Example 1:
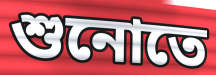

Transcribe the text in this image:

শুনোতে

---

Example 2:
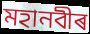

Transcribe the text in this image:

মহানবীৰ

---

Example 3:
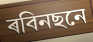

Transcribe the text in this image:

ৰবিনছনে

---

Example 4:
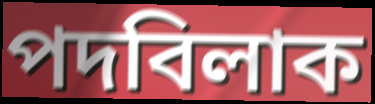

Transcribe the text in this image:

পদবিলাক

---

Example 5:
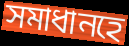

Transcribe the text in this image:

সমাধানহে